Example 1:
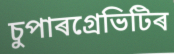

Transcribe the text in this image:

চুপাৰগ্ৰেভিটিৰ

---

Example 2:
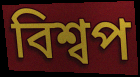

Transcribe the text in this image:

বিশ্বপ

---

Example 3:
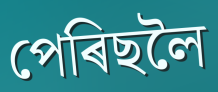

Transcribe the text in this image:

পেৰিছলৈ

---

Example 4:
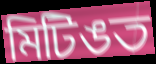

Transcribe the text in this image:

মিটিঙত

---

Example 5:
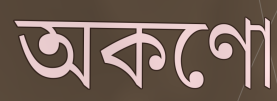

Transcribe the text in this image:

অকণো